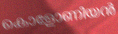
കൊളോണിയൻ